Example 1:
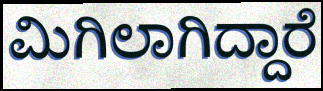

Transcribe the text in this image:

ಮಿಗಿಲಾಗಿದ್ದಾರೆ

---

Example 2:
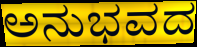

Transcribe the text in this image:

ಅನುಭವದ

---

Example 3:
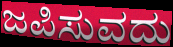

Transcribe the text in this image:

ಜಪಿಸುವದು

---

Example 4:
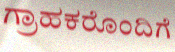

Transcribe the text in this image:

ಗ್ರಾಹಕರೊಂದಿಗೆ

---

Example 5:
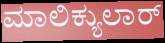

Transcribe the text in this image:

ಮಾಲಿಕ್ಯುಲಾರ್